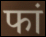
फां